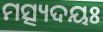
ମତ୍ସ୍ୟଦୟଃ